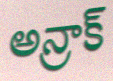
అన్రాక్